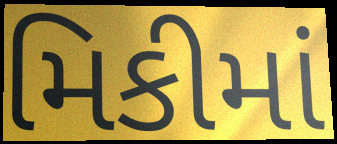
મિકીમાં